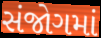
સંજોગમાં